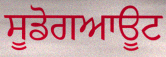
ਸੂਡੋਗਆਊਟ